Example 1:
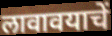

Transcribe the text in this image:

लावावयाचें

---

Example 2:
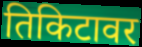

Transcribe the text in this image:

तिकिटावर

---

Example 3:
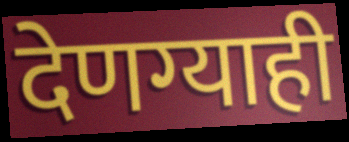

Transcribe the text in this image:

देणग्याही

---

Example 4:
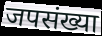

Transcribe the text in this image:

जपसंख्या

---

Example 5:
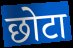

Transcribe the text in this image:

छोटा